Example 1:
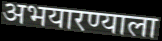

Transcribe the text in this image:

अभयारण्याला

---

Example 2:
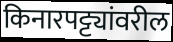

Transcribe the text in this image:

किनारपट्ट्यांवरील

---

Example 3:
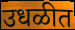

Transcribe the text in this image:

उधळीत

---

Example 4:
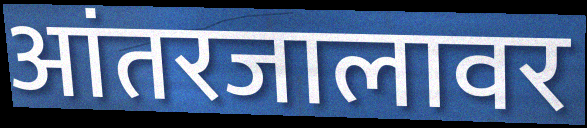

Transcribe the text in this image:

आंतरजालावर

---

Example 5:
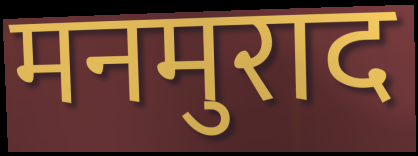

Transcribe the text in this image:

मनमुराद